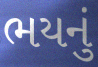
ભયનું